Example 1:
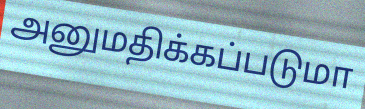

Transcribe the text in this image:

அனுமதிக்கப்படுமா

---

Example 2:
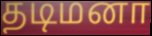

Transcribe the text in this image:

தடிமனா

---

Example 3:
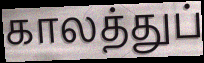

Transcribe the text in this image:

காலத்துப்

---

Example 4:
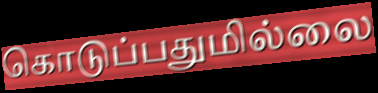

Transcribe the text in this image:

கொடுப்பதுமில்லை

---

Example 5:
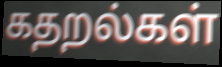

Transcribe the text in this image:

கதறல்கள்